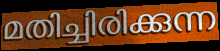
മതിച്ചിരിക്കുന്ന